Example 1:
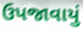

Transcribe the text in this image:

ઉપજાવાયું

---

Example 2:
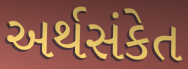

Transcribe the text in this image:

અર્થસંકેત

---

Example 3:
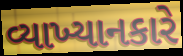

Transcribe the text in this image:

વ્યાખ્યાનકારે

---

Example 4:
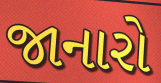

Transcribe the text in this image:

જાનારો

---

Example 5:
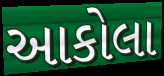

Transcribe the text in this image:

આકોલા